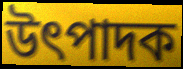
উৎপাদক